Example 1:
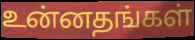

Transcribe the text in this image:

உன்னதங்கள்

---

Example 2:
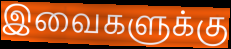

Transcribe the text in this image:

இவைகளுக்கு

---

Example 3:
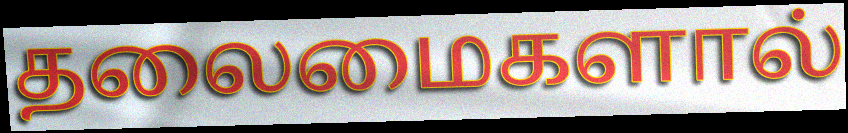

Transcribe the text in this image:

தலைமைகளால்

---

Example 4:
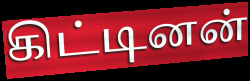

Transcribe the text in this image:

கிட்டினன்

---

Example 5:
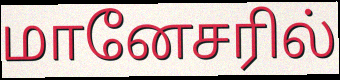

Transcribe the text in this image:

மானேசரில்